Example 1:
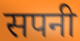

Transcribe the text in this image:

सपनी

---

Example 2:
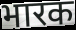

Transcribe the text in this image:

भारक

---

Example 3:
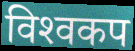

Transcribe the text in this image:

विश्‍वकप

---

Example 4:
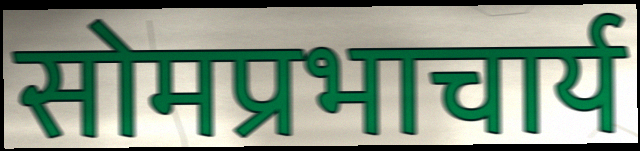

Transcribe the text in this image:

सोमप्रभाचार्य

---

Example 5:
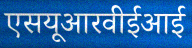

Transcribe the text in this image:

एसयूआरवीईआई